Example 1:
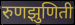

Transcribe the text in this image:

रुणझुणिती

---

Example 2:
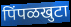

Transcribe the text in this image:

पिंपळखुटा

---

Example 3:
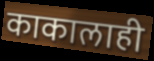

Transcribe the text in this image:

काकालाही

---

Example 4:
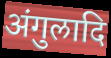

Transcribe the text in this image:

अंगुलादि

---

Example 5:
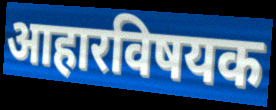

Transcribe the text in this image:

आहारविषयक